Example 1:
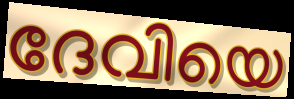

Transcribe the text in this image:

ദേവിയെ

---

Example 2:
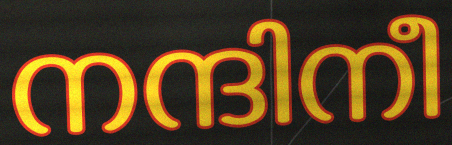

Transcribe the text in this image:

നന്ദിനീ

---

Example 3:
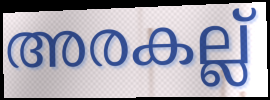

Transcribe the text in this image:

അരകല്ല്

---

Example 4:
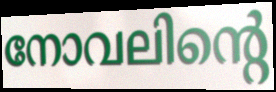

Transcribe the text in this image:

നോവലിന്റെ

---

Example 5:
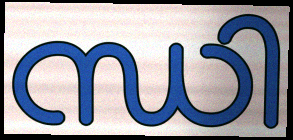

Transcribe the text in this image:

ന്ധി